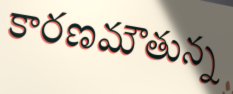
కారణమౌతున్న